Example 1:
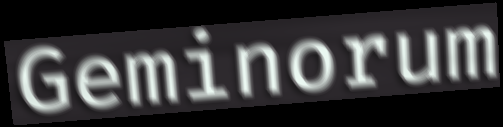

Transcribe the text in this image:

Geminorum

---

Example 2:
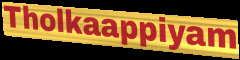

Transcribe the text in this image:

Tholkaappiyam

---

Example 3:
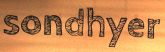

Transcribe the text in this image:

sondhyer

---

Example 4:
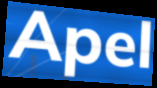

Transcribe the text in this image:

Apel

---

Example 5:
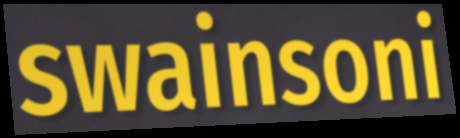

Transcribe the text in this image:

swainsoni